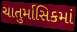
ચાતુર્માસિકમાં